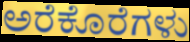
ಅರೆಕೊರೆಗಳು